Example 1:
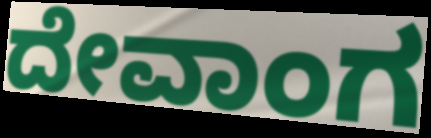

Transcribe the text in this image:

ದೇವಾಂಗ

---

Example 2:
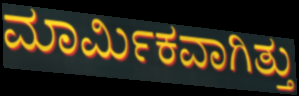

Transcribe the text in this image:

ಮಾರ್ಮಿಕವಾಗಿತ್ತು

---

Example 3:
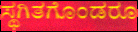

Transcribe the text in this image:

ಸ್ಥಗಿತಗೊಂಡರೂ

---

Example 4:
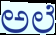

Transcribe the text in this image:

ಅಲೆ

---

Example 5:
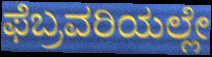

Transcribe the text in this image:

ಫೆಬ್ರವರಿಯಲ್ಲೇ